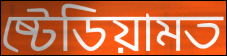
ষ্টেডিয়ামত